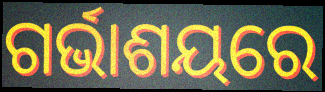
ଗର୍ଭାଶୟରେ